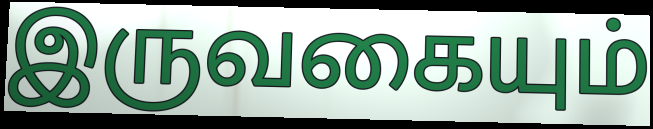
இருவகையும்